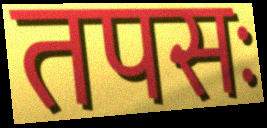
तपसः